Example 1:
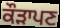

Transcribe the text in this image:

ਕੌੜਾਪਣ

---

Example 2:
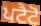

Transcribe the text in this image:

ਪਟੈਟੋ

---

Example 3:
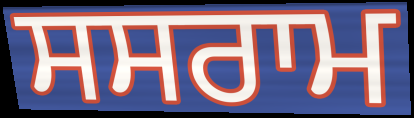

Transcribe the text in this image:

ਸਸਰਾਮ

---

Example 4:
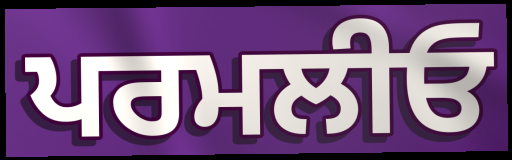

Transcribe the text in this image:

ਪਰਮਲੀਓ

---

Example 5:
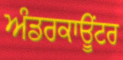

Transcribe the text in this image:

ਅੰਡਰਕਾਊਂਟਰ